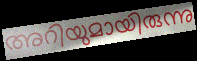
അറിയുമായിരുന്നു